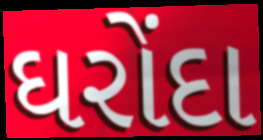
ઘરોંદા